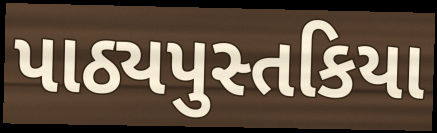
પાઠ્યપુસ્તકિયા